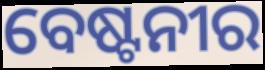
ବେଷ୍ଟନୀର